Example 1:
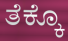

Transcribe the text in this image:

ತೆಕ್ಕೊ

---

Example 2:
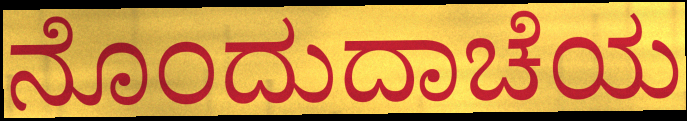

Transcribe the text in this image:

ನೊಂದುದಾಚೆಯ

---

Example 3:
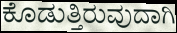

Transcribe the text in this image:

ಕೊಡುತ್ತಿರುವುದಾಗಿ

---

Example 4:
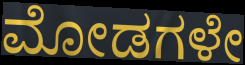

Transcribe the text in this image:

ಮೋಡಗಳೇ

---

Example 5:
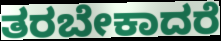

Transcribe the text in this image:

ತರಬೇಕಾದರೆ